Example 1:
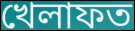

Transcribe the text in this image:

খেলাফত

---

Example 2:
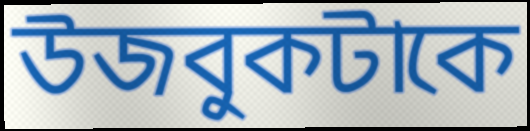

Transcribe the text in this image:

উজবুকটাকে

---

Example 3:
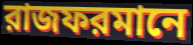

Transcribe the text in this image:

রাজফরমানে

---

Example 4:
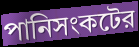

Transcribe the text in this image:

পানিসংকটের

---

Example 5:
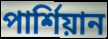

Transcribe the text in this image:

পার্শিয়ান